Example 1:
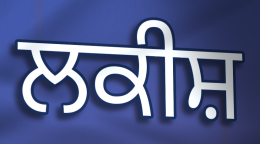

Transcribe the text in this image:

ਲਕੀਸ਼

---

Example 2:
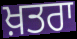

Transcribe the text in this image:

ਖ਼ਤਰਾ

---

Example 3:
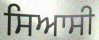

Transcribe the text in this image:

ਸਿਆਸੀ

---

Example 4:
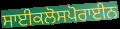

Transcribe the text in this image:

ਸਾਈਕਲੋਸਪੋਰਾਈਨ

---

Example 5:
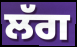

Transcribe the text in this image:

ਲੱਗ